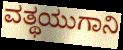
ವತ್ಥಯುಗಾನಿ